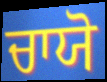
ਚਾਯੋ